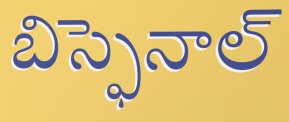
బిస్ఫెనాల్